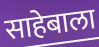
साहेबाला